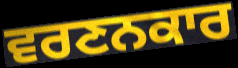
ਵਰਣਨਕਾਰ